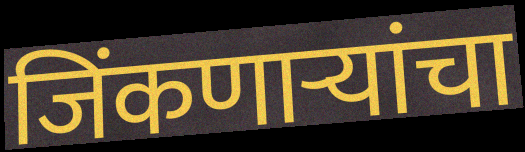
जिंकणाऱ्यांचा